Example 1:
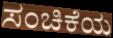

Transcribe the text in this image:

ಸಂಚಿಕೆಯ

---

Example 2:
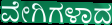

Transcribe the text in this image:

ವೇಗಿಗಳಾದ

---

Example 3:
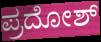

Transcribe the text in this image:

ಪ್ರದೋಶ್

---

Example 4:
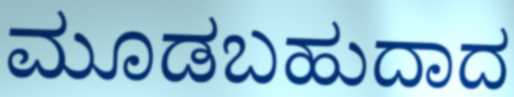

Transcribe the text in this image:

ಮೂಡಬಹುದಾದ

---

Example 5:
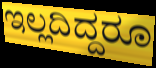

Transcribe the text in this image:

ಇಲ್ಲದಿದ್ದರೂ